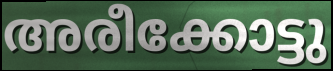
അരീക്കോട്ടു